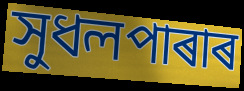
সুধলপাৰাৰ